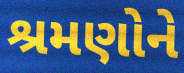
શ્રમણોને